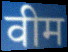
वीम